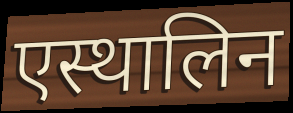
एस्थालिन